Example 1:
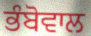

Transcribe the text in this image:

ਭੰਬੋਵਾਲ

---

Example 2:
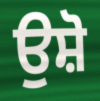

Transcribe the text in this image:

ਉਸ਼ੋ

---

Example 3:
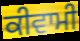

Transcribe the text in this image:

ਕੀਵਾਮੀ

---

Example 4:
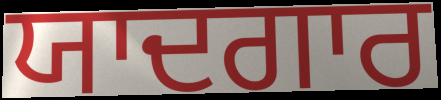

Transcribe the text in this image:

ਯਾਦਗਾਰ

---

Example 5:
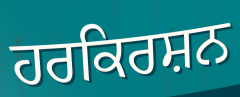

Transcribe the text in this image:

ਹਰਕਿਰਸ਼ਨ